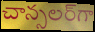
చాన్సలర్‌గా